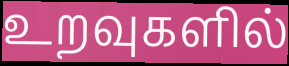
உறவுகளில்